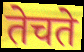
तेचते